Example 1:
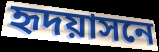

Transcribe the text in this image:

হৃদয়াসনে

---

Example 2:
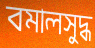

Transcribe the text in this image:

বমালসুদ্ধ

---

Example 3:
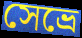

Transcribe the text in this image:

সেভ্রে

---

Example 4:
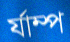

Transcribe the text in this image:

র্যাম্প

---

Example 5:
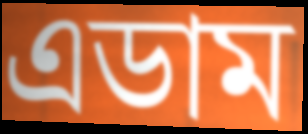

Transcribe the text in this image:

এডাম